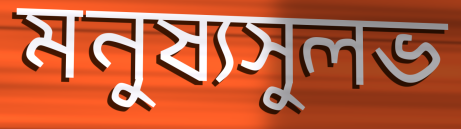
মনুষ্যসুলভ